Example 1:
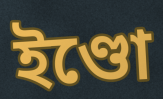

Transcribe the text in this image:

ইণ্ডো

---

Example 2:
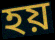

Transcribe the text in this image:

হয়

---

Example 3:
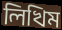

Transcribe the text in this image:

লিখিম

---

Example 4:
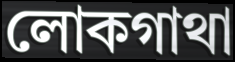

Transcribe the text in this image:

লোকগাথা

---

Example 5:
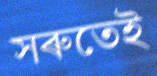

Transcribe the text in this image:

সৰুতেই